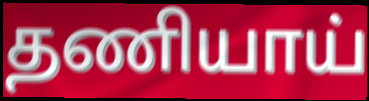
தணியாய்